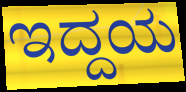
ಇದ್ದಯ